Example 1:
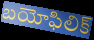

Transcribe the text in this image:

బయోఫిలిక్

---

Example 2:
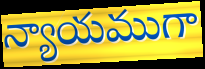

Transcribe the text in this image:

న్యాయముగా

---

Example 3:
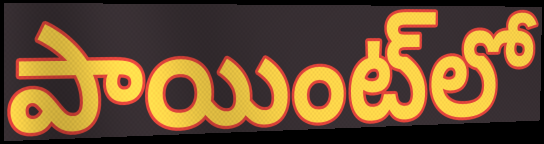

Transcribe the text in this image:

పాయింట్‌లో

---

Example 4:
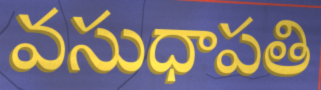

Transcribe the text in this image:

వసుధాపతి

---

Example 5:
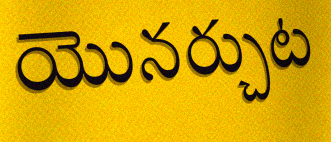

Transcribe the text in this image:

యొనర్చుట